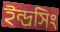
ইন্দ্রসিং